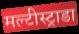
मल्टीस्ट्राडा